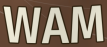
WAM